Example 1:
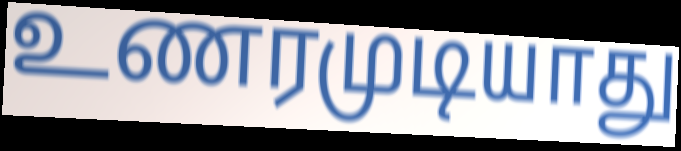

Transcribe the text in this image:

உணரமுடியாது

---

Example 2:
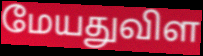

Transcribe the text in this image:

மேயதுவிள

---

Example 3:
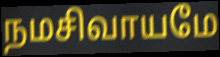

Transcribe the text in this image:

நமசிவாயமே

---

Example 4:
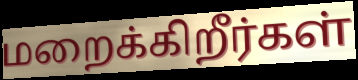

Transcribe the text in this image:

மறைக்கிறீர்கள்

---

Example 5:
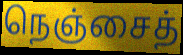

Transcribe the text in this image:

நெஞ்சைத்